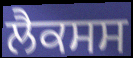
ਲੈਕਸਸ